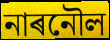
নাৰনৌল